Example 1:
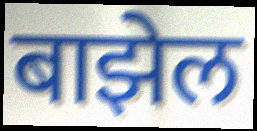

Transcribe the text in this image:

बाझेल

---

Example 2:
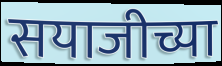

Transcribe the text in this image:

सयाजीच्या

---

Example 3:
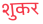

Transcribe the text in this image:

शुकर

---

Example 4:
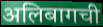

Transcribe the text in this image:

अलिबागची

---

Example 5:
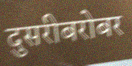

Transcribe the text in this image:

दुसरीबरोबर